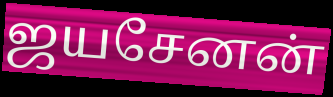
ஜயசேனன்